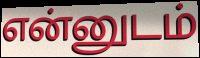
என்னுடம்